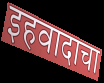
इहवादाचा